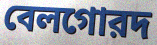
বেলগোরদ